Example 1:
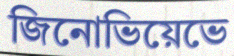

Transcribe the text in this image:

জিনোভিয়েভে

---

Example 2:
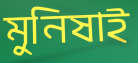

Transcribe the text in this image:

মুনিষাই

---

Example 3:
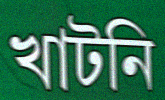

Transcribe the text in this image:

খাটনি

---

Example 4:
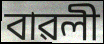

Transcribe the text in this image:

বাৱলী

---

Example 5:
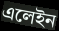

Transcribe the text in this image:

এলেইন